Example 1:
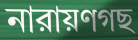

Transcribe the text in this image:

নারায়ণগছ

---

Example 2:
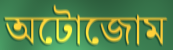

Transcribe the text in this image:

অটোজোম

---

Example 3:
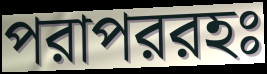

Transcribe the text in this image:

পরাপররহঃ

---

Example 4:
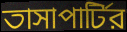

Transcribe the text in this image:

তাসাপার্টির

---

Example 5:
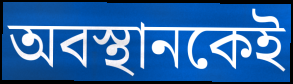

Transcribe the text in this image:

অবস্থানকেই